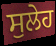
ਸੁਲੇਹ